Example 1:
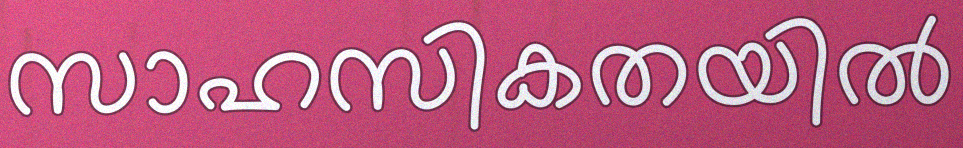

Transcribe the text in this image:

സാഹസികതയിൽ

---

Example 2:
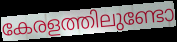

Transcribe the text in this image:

കേരളത്തിലുണ്ടോ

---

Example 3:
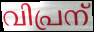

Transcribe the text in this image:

വിപ്രന്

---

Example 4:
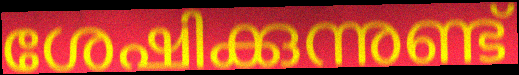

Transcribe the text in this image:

ശേഷിക്കുന്നുണ്ട്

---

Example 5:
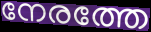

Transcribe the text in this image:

നേരത്തേ